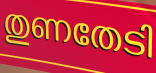
തുണതേടി